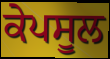
ਕੇਪਸੂਲ